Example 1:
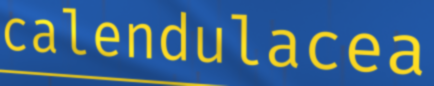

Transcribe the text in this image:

calendulacea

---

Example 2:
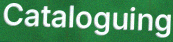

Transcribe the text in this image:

Cataloguing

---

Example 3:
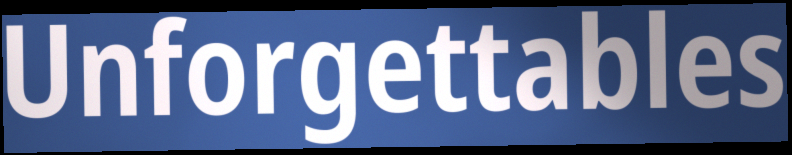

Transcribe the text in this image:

Unforgettables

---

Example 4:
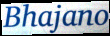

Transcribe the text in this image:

Bhajano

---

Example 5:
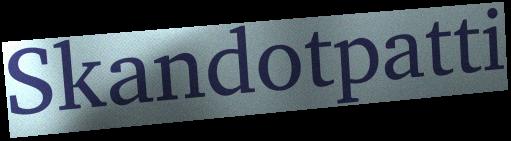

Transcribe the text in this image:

Skandotpatti